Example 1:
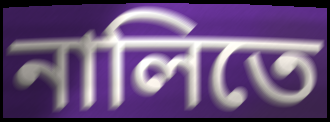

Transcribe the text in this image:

নালিতে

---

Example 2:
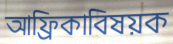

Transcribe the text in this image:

আফ্রিকাবিষয়ক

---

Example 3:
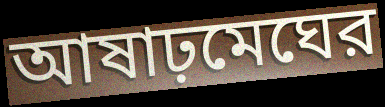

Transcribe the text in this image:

আষাঢ়মেঘের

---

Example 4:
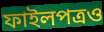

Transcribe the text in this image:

ফাইলপত্রও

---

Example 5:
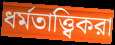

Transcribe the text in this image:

ধর্মতাত্ত্বিকরা